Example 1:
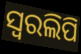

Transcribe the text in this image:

ସ୍ଵରଲିପି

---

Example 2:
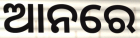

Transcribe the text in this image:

ଆନରେ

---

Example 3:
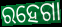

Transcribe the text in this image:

ରହେଗା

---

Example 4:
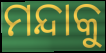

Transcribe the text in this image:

ମନ୍ଦାକୁ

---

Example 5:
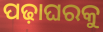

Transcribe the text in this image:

ପଢ଼ାଘରକୁ